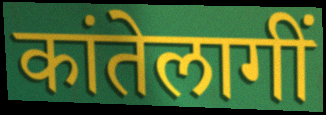
कांतेलागीं